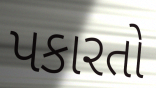
પકારતો